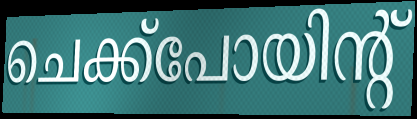
ചെക്ക്പോയിന്റ്